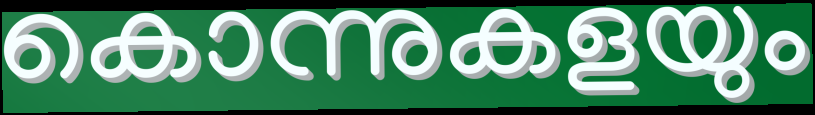
കൊന്നുകളയും